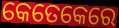
କେତେକେରେ